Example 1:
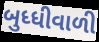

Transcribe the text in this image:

બુધ્ધીવાળી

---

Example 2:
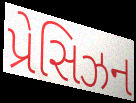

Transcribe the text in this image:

પ્રેસિઝન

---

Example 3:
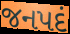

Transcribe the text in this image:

જનપદં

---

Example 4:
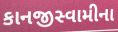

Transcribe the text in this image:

કાનજીસ્વામીના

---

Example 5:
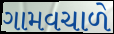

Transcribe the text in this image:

ગામવચાળે